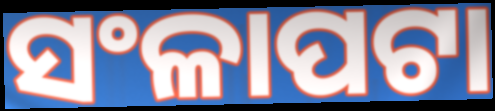
ସଂଳାପଟା